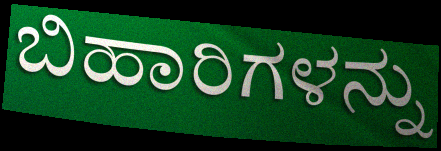
ಬಿಹಾರಿಗಳನ್ನು